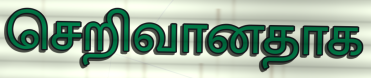
செறிவானதாக